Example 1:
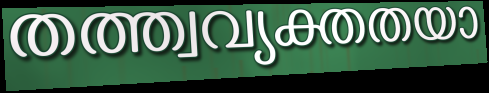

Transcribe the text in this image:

തത്ത്വവ്യക്തതയാ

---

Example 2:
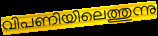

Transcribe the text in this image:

വിപണിയിലെത്തുന്നു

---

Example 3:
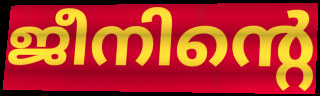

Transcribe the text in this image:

ജീനിന്റെ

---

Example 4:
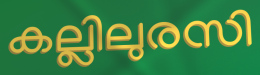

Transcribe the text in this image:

കല്ലിലുരസി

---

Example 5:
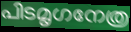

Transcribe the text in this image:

പിടമൃഗനേത്ര